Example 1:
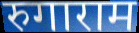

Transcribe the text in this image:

रुगाराम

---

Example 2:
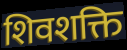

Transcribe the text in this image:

शिवशक्ति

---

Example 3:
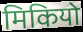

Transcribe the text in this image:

मिकियो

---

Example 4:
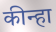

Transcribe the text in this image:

कीन्हा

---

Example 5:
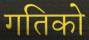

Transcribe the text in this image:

गतिको